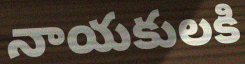
నాయకులకి